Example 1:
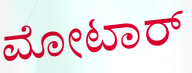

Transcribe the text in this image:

ಮೋಟಾರ್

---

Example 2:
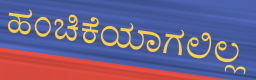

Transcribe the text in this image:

ಹಂಚಿಕೆಯಾಗಲಿಲ್ಲ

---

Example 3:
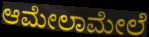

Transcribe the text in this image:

ಆಮೇಲಾಮೇಲೆ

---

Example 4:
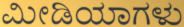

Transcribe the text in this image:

ಮೀಡಿಯಾಗಳು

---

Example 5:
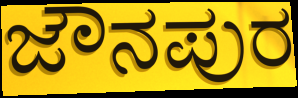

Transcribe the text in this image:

ಜೌನಪುರ